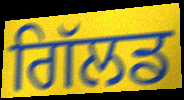
ਗਿੱਲਡ